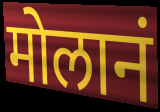
मोलानं